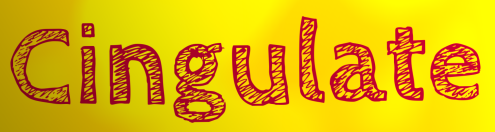
Cingulate